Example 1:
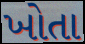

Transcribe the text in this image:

ખોતા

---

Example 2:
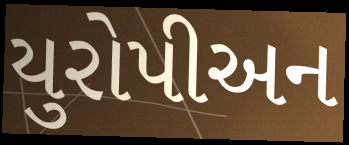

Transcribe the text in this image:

યુરોપીઅન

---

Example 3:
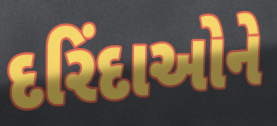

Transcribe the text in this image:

દરિંદાઓને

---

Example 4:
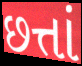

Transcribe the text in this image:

છત્તાં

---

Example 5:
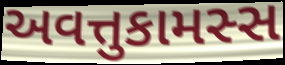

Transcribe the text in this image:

અવત્તુકામસ્સ